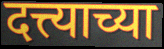
दत्त्याच्या